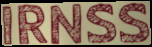
IRNSS